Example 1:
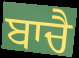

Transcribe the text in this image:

ਬਾਚੈ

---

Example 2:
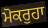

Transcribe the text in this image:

ਮੋਕਰੁਹਾ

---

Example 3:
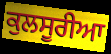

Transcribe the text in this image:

ਕੁਲਸੂਰੀਆ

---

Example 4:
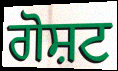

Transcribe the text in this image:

ਗੋਸ਼ਟ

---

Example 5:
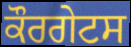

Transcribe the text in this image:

ਕੌਰਗੇਟਸ